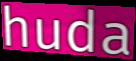
huda